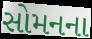
સોમનના